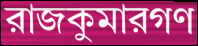
রাজকুমারগণ